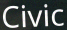
Civic